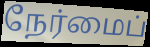
நேர்மைப்